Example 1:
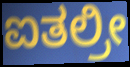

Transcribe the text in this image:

ಐತಲ್ರೀ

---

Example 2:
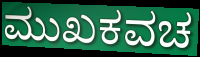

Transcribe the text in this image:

ಮುಖಕವಚ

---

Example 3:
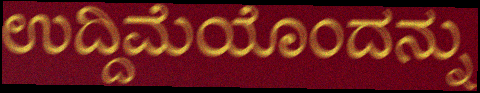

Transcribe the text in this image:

ಉದ್ದಿಮೆಯೊಂದನ್ನು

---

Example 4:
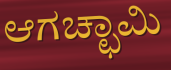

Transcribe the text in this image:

ಆಗಚ್ಛಾಮಿ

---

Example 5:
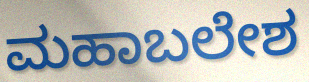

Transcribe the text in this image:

ಮಹಾಬಲೇಶ